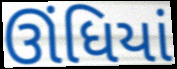
ઊંધિયાં